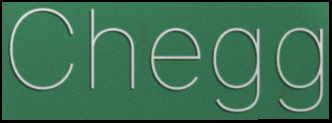
Chegg